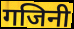
गजिनी